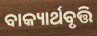
ବାକ୍ୟାର୍ଥବୃତ୍ତି